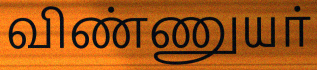
விண்ணுயர்